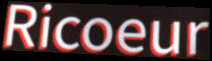
Ricoeur